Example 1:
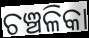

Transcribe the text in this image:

ଚଞ୍ଚଳିକା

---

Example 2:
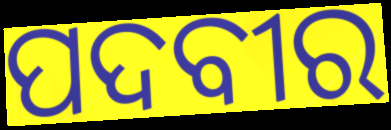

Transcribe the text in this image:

ପଦବୀର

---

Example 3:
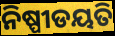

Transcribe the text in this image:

ନିଷ୍ପୀଡୟତି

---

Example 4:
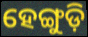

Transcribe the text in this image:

ହେଙ୍ଗୁଡ଼ି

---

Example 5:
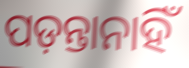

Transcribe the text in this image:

ପଡ଼ନ୍ତାନାହିଁ